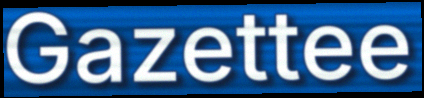
Gazettee